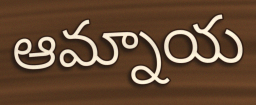
ఆమ్నాయ